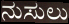
ನುಸುಲು